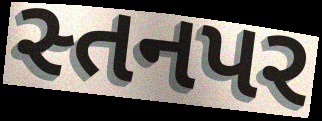
સ્તનપર